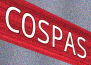
COSPAS